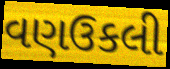
વણઉકલી